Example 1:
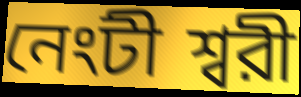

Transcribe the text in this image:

নেংটীশ্বরী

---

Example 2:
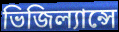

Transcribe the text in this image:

ভিজিল্যান্সে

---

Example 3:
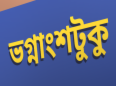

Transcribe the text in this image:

ভগ্নাংশটুকু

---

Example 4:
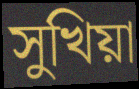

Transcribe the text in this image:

সুখিয়া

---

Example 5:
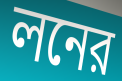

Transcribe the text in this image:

লনের